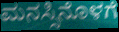
ಮನಸ್ಸಿನೊಳಗೆ